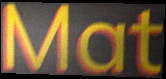
Mat